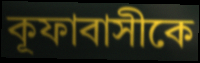
কূফাবাসীকে